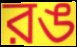
রঙ